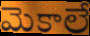
మెకాలే